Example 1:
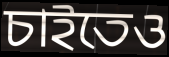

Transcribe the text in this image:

চাইতেও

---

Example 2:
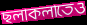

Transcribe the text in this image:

ছলাকলাতেও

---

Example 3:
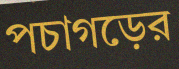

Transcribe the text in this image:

পচাগড়ের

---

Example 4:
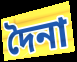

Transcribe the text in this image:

দৈনা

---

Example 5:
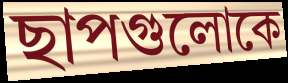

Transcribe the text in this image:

ছাপগুলোকে